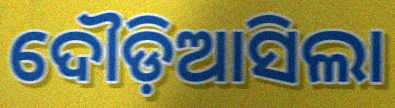
ଦୌଡ଼ିଆସିଲା